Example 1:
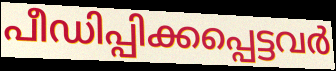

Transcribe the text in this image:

പീഡിപ്പിക്കപ്പെട്ടവർ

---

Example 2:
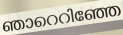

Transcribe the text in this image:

ഞാറെറിഞ്ഞേ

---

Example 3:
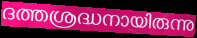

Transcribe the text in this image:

ദത്തശ്രദ്ധനായിരുന്നു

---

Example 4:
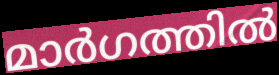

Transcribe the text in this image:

മാർഗത്തിൽ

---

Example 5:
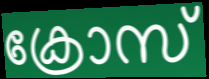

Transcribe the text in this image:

ക്രോസ്